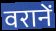
वरानें